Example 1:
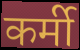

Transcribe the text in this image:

कर्मी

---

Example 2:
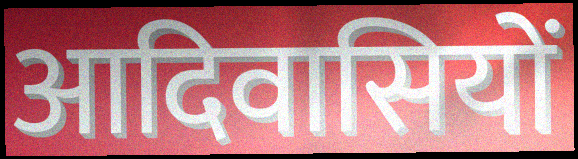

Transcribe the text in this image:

आदिवासियों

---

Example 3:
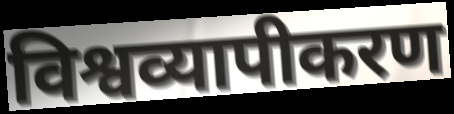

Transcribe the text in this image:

विश्वव्यापीकरण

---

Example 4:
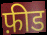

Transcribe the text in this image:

फ़ीड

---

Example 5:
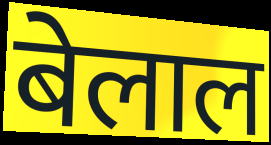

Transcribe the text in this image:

बेलाल